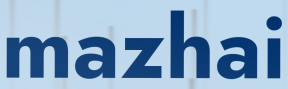
mazhai